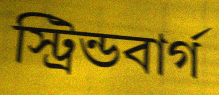
স্ট্রিন্ডবার্গ